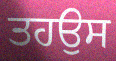
ਤਹਉਸ